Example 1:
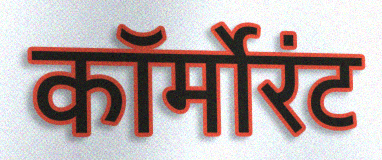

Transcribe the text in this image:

कॉर्मोरंट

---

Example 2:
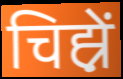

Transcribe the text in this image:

चिह्नें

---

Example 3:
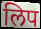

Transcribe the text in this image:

लिप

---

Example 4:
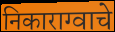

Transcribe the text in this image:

निकाराग्वाचे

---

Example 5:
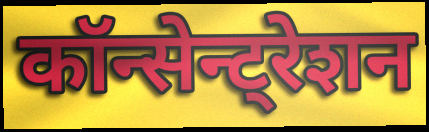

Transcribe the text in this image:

कॉन्सेन्ट्रेशन